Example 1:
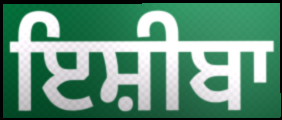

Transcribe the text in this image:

ਇਸ਼ੀਬਾ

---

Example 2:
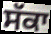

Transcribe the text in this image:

ਸੱਕਾ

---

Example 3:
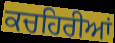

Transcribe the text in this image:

ਕਚਹਿਰੀਆਂ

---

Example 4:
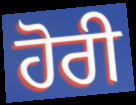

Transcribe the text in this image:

ਹੋਰੀ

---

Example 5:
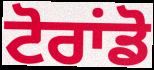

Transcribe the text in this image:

ਟੋਰਾਂਡੋ